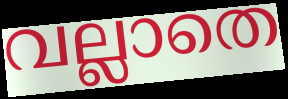
വല്ലാതെ